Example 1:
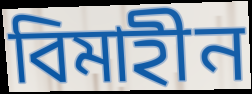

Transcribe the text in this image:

বিমাহীন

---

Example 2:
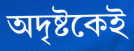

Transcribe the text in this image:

অদৃষ্টকেই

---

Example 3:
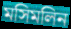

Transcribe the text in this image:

মসিমলিন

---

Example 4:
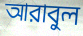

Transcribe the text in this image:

আরাবুল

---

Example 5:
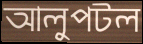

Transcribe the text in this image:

আলুপটল